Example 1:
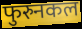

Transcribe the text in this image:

फुरुनकल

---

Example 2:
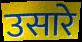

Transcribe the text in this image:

उसारे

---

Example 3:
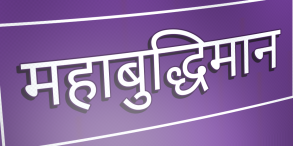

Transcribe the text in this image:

महाबुद्धिमान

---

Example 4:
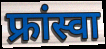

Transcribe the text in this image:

फ्रांस्वा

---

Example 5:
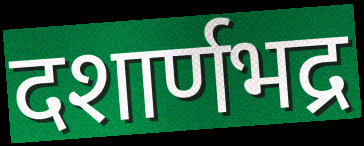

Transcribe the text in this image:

दशार्णभद्र